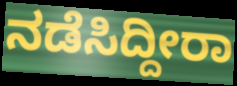
ನಡೆಸಿದ್ದೀರಾ